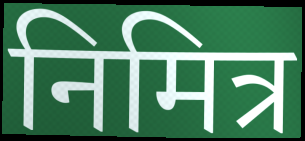
निमित्र